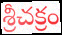
శ్రీచక్రం